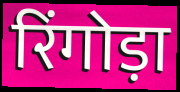
रिंगोड़ा